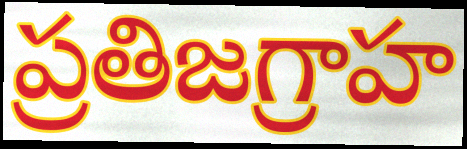
ప్రతిజగ్రాహ